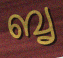
ബൃ